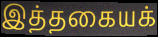
இத்தகையக்